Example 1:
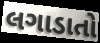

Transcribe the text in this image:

લગાડાતો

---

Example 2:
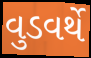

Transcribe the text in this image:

વુડવર્થે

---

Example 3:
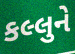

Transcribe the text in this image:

કલ્લુને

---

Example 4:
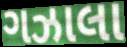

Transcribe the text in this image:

ગઝાલા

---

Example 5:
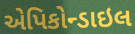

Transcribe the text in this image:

એપિકોન્ડાઇલ